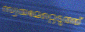
സ്വയമേറ്റെടുത്ത്